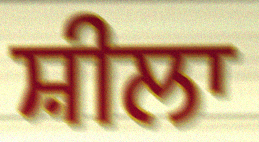
ਸ਼ੀਲਾ